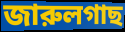
জারুলগাছ